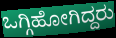
ಒಗ್ಗಿಹೋಗಿದ್ದರು